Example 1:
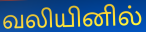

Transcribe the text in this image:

வலியினில்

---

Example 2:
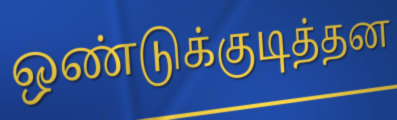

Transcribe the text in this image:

ஒண்டுக்குடித்தன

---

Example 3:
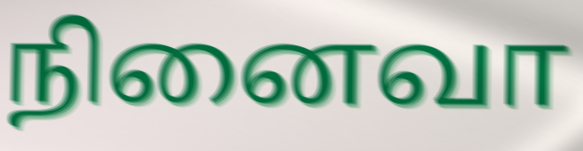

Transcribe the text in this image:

நினைவா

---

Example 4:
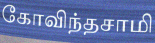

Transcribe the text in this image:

கோவிந்தசாமி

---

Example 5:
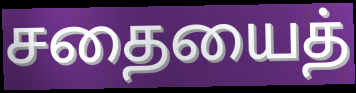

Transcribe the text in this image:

சதையைத்